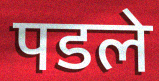
पडले